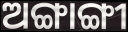
ଅଙ୍ଗାଙ୍ଗୀ